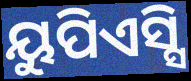
ୟୁପିଏସ୍ସି